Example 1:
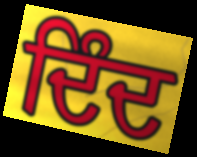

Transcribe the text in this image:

ਦਿੰਦ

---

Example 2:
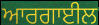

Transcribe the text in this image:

ਆਰਗਾਈਲ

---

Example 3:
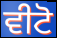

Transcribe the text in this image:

ਵੀਟੋ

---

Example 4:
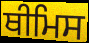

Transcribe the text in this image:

ਥੀਮਿਸ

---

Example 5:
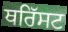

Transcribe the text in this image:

ਥਰਿੱਸਟ